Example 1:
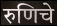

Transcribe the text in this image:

रुणिचे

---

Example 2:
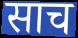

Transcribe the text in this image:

साच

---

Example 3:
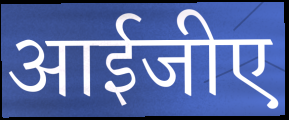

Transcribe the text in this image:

आईजीए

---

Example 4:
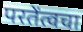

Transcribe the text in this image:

परतेंत्वचा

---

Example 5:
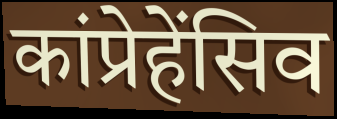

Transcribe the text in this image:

कांप्रेहेंसिव